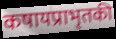
कषायप्राभृतकी